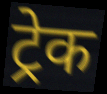
ट्रेक